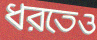
ধরতেও